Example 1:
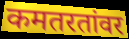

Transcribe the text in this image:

कमतरतांवर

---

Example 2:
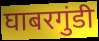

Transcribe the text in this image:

घाबरगुंडी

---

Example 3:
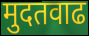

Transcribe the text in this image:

मुदतवाढ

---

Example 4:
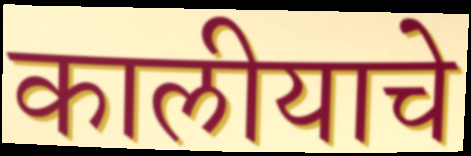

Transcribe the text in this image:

कालीयाचे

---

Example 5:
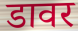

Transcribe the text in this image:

डावर